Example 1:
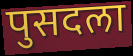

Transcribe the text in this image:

पुसदला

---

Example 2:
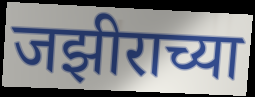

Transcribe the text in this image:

जझीराच्या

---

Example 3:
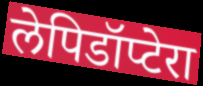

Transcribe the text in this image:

लेपिडॉप्टेरा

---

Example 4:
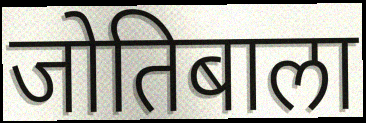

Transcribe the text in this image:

जोतिबाला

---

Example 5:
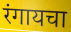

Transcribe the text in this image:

रंगायचा